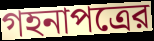
গহনাপত্রের